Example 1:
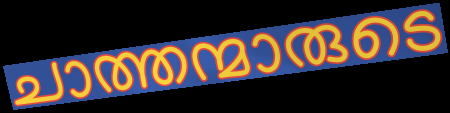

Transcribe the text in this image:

ചാത്തന്മാരുടെ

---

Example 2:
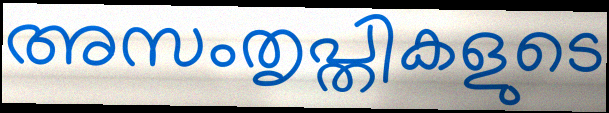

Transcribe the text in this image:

അസംതൃപ്തികളുടെ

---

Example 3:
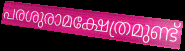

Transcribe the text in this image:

പരശുരാമക്ഷേത്രമുണ്ട്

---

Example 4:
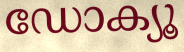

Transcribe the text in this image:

ഡോക്യൂ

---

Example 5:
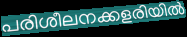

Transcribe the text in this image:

പരിശീലനക്കളരിയിൽ